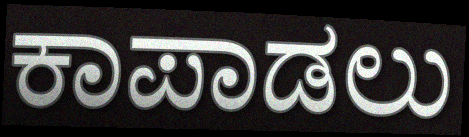
ಕಾಪಾಡಲು